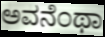
ಅವನೆಂಥಾ